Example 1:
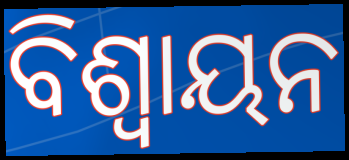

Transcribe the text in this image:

ବିଶ୍ଵାୟନ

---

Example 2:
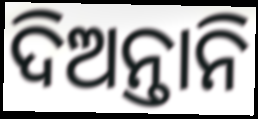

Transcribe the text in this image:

ଦିଅନ୍ତାନି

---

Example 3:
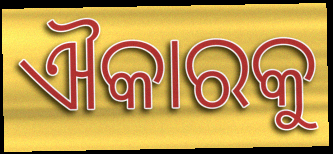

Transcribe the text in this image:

ଐକାରକୁ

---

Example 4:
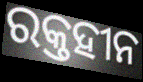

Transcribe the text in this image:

ରକ୍ତହୀନ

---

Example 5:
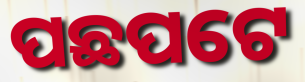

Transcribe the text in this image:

ପଛପଟେ